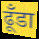
ढूँडा